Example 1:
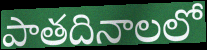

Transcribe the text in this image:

పాతదినాలలో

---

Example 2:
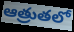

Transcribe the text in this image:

ఆత్రుతలో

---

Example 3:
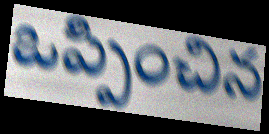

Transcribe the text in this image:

ఒప్పించిన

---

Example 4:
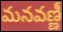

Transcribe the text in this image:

మనవణ్ణీ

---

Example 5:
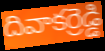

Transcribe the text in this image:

దివాకర్రెడ్డి